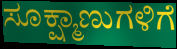
ಸೂಕ್ಷ್ಮಾಣುಗಳಿಗೆ